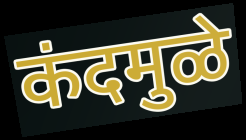
कंदमुळे